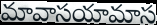
మావాసయామాస